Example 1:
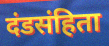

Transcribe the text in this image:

दंडसंहिता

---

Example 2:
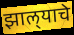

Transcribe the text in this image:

झाल्याचे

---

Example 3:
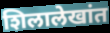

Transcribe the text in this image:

शिलालेखांत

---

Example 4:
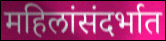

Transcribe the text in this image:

महिलांसंदर्भात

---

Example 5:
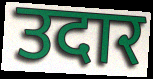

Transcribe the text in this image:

उदार